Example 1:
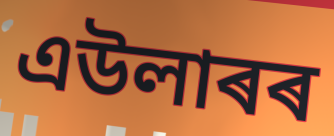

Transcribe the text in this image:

এউলাৰৰ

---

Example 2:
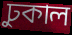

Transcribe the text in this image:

ঢুকাল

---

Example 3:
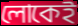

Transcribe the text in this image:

লোকেই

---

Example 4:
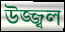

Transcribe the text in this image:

উজ্জ্বল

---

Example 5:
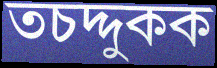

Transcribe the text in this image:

তচদ্দুকক